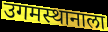
उगमस्थानाला